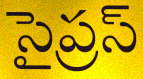
సైప్రస్